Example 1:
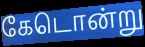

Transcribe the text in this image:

கேடொன்று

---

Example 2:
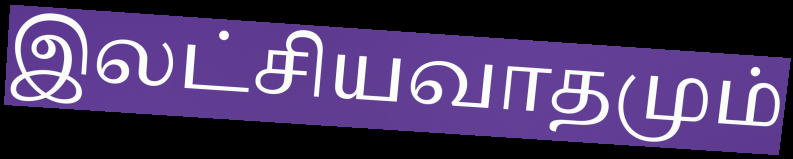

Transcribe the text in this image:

இலட்சியவாதமும்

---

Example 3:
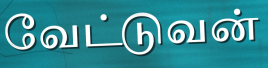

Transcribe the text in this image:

வேட்டுவன்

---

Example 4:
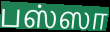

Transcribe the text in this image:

பஸ்ஸா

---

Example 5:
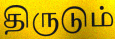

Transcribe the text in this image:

திருடும்